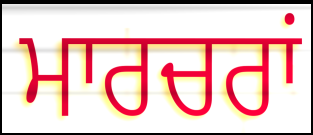
ਮਾਰਚਰਾਂ